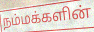
நம்மக்களின்